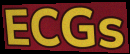
ECGs